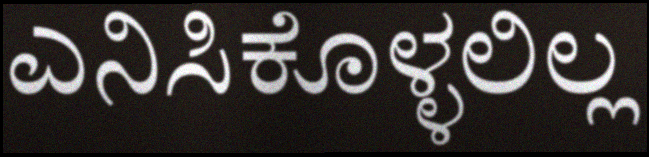
ಎನಿಸಿಕೊಳ್ಳಲಿಲ್ಲ